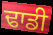
ਢਾਡੀ